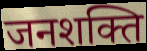
जनशक्ति